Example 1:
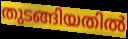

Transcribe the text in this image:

തുടങ്ങിയതിൽ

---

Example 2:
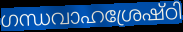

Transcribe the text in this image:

ഗന്ധവാഹശ്രേഷ്ഠി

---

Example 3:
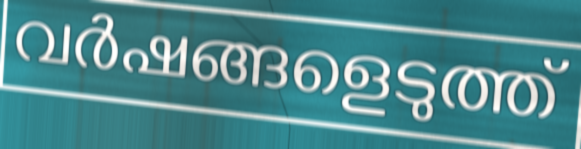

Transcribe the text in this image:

വർഷങ്ങളെടുത്ത്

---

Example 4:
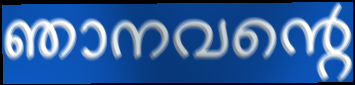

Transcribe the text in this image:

ഞാനവന്റെ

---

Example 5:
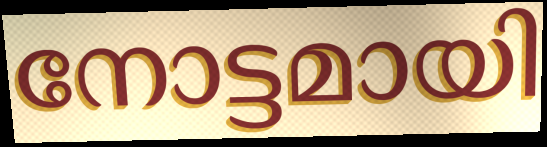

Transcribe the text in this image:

നോട്ടമായി